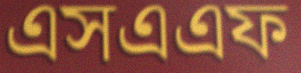
এসএএফ